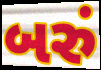
બરું